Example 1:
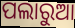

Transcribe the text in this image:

ପଲାରୁଆ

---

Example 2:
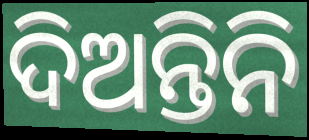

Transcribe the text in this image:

ଦିଅନ୍ତିନି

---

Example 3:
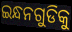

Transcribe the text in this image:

ଇନ୍ଧନଗୁଡିକୁ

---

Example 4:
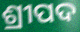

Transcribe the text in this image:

ଶ୍ରୀପଦ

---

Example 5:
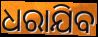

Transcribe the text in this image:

ଧରାଯିବ